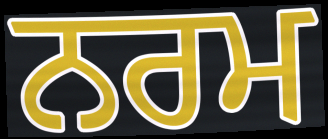
ਨਰਮ